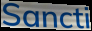
Sancti